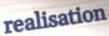
realisation